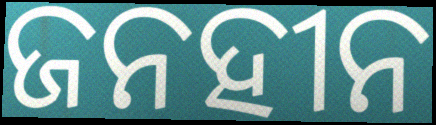
ଜନହୀନ